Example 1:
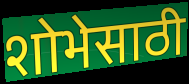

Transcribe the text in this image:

शोभेसाठी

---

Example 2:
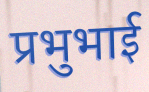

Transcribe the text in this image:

प्रभुभाई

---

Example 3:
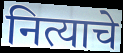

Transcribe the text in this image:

नित्याचे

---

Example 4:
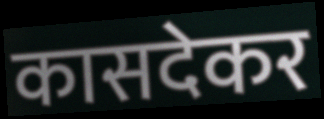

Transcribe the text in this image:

कासदेकर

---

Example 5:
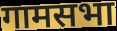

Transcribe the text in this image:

गामसभा